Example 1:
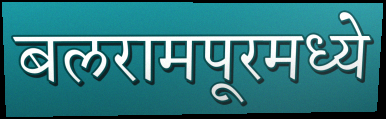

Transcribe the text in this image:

बलरामपूरमध्ये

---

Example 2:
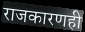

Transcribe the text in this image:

राजकारणही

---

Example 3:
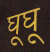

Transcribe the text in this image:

घूघू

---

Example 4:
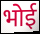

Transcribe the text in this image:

भोई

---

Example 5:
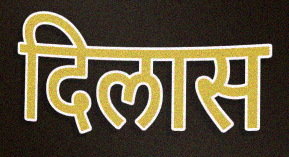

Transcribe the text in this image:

दिलास